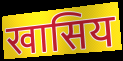
खासिय